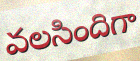
వలసిందిగా